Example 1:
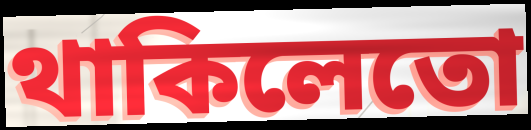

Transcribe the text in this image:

থাকিলেতো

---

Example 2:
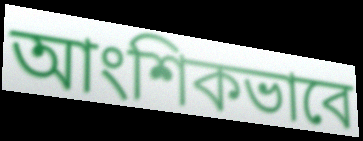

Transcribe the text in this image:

আংশিকভাবে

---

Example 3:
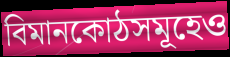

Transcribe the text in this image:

বিমানকোঠসমূহেও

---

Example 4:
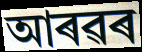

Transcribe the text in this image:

আৰৱৰ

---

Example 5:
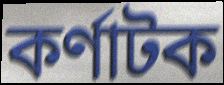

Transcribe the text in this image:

কৰ্ণাটক